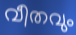
വീതവും